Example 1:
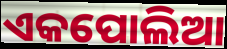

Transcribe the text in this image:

ଏକପୋଲିଆ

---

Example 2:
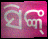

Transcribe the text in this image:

ସିଙ୍କ୍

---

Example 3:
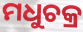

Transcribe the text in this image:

ମଧୁଚକ୍ର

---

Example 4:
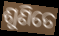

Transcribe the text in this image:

ଶୁଣିତେ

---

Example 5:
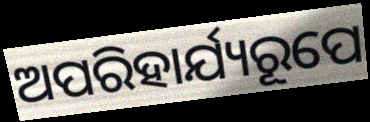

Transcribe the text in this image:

ଅପରିହାର୍ଯ୍ୟରୂପେ